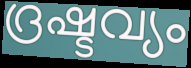
ദ്രഷ്ടവ്യം